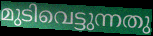
മുടിവെട്ടുന്നതു